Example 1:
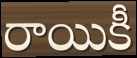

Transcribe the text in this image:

రాయికీ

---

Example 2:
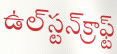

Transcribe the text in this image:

ఉల్‌స్టన్‌క్రాఫ్ట్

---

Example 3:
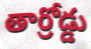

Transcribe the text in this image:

తార్రోడ్డు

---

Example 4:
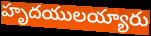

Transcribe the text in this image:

హృదయులయ్యారు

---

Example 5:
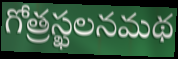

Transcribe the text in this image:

గోత్రస్ఖలనమథ